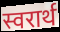
स्वरार्थ